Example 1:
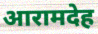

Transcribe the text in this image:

आरामदेह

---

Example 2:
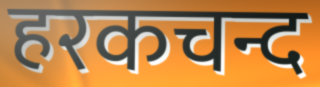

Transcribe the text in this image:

हरकचन्द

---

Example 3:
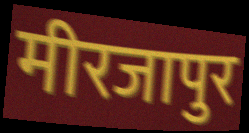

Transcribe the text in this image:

मीरजापुर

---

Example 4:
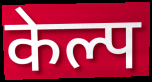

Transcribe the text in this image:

केल्प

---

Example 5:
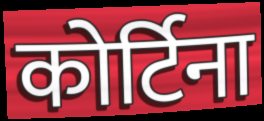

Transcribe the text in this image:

कोर्टिना